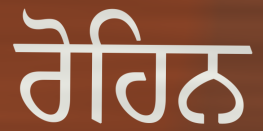
ਰੋਹਿਨ